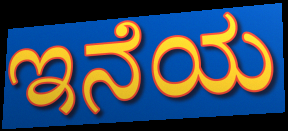
ಇನೆಯ